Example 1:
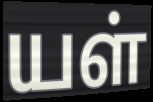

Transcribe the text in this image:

யள்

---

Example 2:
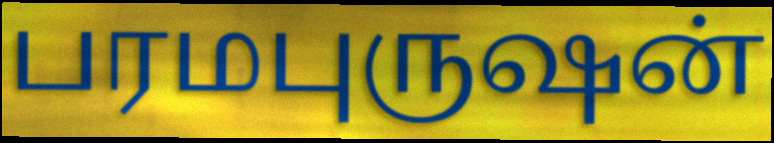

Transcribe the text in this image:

பரமபுருஷன்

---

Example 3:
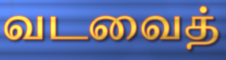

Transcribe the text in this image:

வடவைத்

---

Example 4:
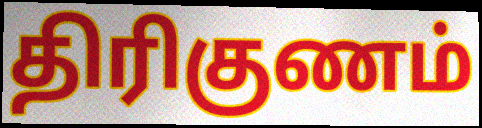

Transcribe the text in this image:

திரிகுணம்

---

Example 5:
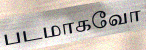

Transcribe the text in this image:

படமாகவோ